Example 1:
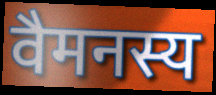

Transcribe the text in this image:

वैमनस्य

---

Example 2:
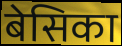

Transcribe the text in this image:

बेसिका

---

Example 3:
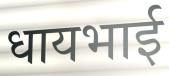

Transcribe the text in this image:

धायभाई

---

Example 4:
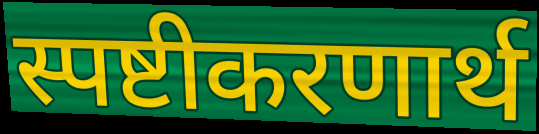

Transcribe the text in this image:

स्पष्टीकरणार्थ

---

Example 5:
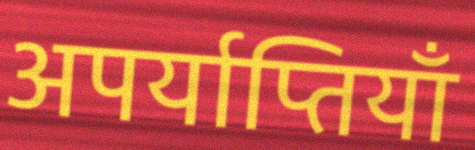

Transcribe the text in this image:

अपर्याप्तियाँ